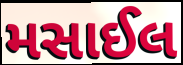
મસાઈલ